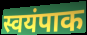
स्वयंपाक